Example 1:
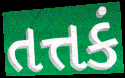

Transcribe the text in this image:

તત્તકં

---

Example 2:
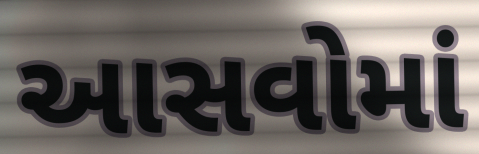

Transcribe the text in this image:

આસવોમાં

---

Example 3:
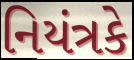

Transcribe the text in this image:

નિયંત્રકે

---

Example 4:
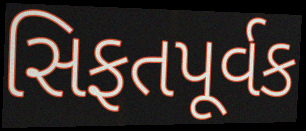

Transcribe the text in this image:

સિફતપૂર્વક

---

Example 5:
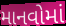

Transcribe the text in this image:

માનવોમાં